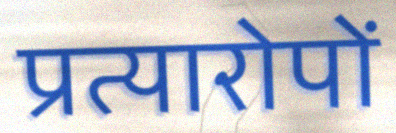
प्रत्यारोपों